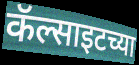
कॅल्साइटच्या